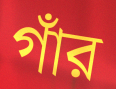
গাঁর